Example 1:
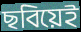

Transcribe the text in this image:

ছবিয়েই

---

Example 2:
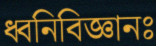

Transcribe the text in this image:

ধ্বনিবিজ্ঞানঃ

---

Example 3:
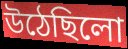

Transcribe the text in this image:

উঠেছিলো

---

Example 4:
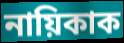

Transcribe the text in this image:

নায়িকাক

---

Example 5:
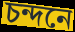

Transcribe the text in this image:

চন্দনে